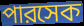
পারসেক